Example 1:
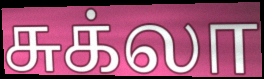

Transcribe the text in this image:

சுக்லா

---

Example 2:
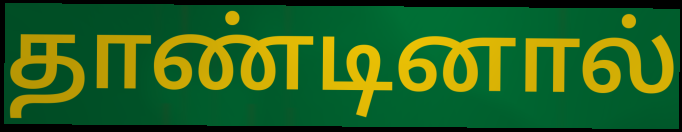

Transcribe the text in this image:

தாண்டினால்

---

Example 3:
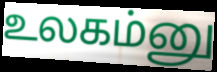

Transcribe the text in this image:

உலகம்னு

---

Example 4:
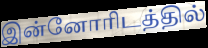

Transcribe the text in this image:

இன்னோரிடத்தில்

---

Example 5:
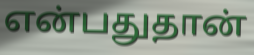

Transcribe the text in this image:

என்பதுதான்